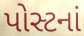
પોસ્ટનાં